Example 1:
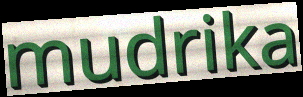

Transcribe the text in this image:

mudrika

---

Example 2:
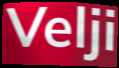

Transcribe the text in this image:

Velji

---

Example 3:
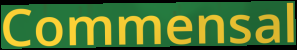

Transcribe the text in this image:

Commensal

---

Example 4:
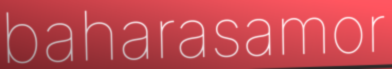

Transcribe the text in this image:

baharasamor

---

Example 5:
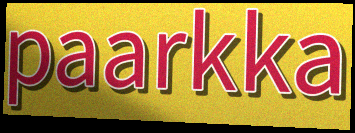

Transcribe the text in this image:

paarkka